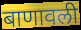
बाणावली